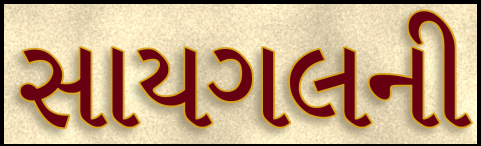
સાયગલની